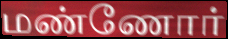
மண்ணோர்